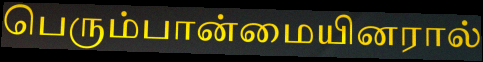
பெரும்பான்மையினரால்